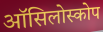
ऑसिलोस्कोप